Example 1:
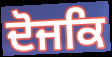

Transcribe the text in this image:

ਦੋਜਕਿ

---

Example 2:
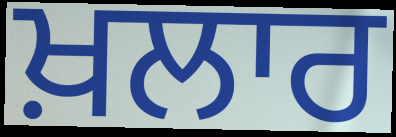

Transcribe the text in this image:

ਖ਼ਲਾਰ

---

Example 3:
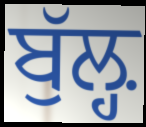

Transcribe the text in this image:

ਬੁੱਲ਼੍ਹ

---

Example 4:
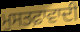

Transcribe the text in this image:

ਮੁਸਤਫ਼ਾਵਾਦੀ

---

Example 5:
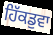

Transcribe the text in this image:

ਹਿੱਕਡੁਵਾ